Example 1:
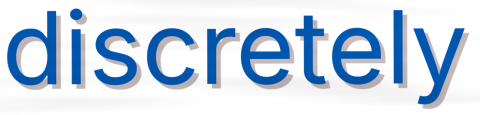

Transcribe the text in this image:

discretely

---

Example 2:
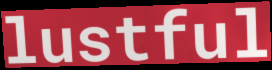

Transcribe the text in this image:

lustful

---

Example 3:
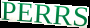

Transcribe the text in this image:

PERRS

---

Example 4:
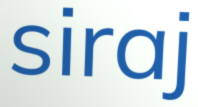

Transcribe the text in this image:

siraj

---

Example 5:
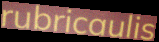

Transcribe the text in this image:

rubricaulis